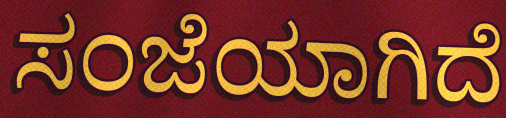
ಸಂಜೆಯಾಗಿದೆ